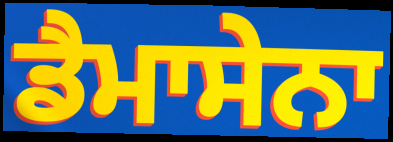
ਡੈਮਾਸੇਨਾ